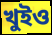
খুইও